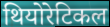
थियोरेटिकल